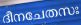
ദീനചേതസഃ